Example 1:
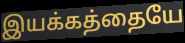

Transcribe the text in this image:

இயக்கத்தையே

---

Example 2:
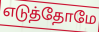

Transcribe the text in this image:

எடுத்தோமே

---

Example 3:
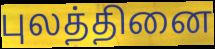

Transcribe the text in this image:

புலத்தினை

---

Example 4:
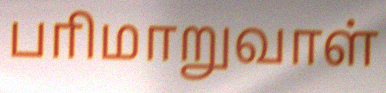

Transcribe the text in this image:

பரிமாறுவாள்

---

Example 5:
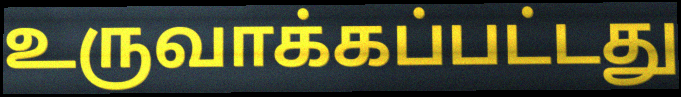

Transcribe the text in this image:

உருவாக்கப்பட்டது